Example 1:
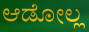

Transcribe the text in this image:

ಆಡೋಲ್ಲ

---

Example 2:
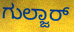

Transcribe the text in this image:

ಗುಲ್ಜಾರ್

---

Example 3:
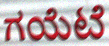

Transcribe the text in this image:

ಗಯೆಟೆ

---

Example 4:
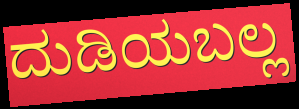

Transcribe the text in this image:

ದುಡಿಯಬಲ್ಲ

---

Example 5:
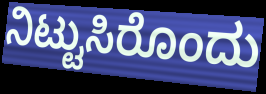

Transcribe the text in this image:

ನಿಟ್ಟುಸಿರೊಂದು